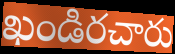
ఖండిరచారు